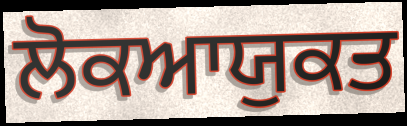
ਲੋਕਆਯੁਕਤ